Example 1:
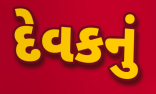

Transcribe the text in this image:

દેવકનું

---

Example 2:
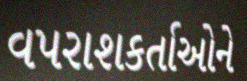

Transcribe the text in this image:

વપરાશકર્તાઓને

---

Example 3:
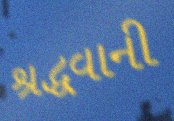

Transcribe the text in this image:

શ્રદ્ધવાની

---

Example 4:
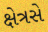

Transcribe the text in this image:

ક્ષેત્રસે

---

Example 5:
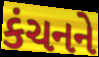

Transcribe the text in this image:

કંચનને